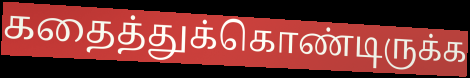
கதைத்துக்கொண்டிருக்க